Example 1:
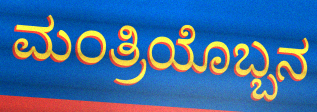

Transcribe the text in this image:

ಮಂತ್ರಿಯೊಬ್ಬನ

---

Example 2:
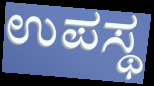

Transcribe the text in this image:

ಉಪಸ್ಥ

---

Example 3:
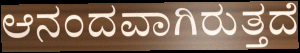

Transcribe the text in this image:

ಆನಂದವಾಗಿರುತ್ತದೆ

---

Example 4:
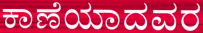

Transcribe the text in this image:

ಕಾಣೆಯಾದವರ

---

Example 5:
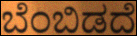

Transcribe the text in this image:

ಬೆಂಬಿಡದೆ